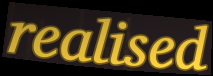
realised